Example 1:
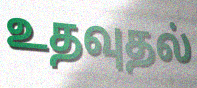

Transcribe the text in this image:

உதவுதல்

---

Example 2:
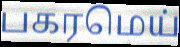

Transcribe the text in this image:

பகரமெய்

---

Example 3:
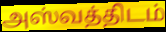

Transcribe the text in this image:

அஸ்வத்திடம்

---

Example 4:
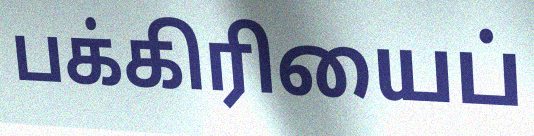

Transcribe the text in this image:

பக்கிரியைப்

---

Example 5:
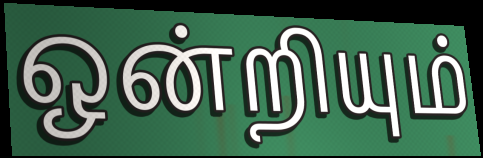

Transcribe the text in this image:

ஒன்றியும்